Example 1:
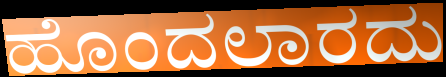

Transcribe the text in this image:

ಹೊಂದಲಾರದು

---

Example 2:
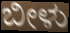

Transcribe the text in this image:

ಬೀಳು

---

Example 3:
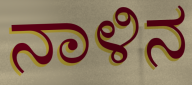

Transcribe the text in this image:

ನಾಳಿನ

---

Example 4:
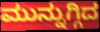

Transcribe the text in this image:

ಮುನ್ನುಗ್ಗಿದ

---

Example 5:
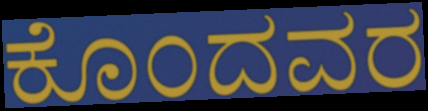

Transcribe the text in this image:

ಕೊಂದವರ